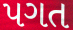
પગત